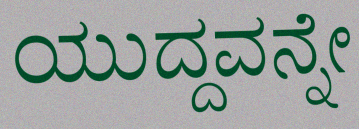
ಯುದ್ದವನ್ನೇ